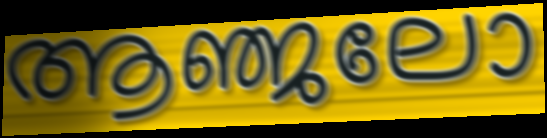
ആഞ്ജലോ